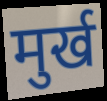
मुर्ख